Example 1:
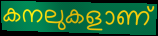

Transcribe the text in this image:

കനലുകളാണ്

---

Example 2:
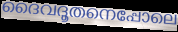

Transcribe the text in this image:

ദൈവദൂതനെപ്പോലെ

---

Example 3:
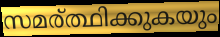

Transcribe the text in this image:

സമര്ത്ഥിക്കുകയും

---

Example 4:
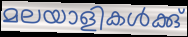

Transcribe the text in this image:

മലയാളികൾക്കു്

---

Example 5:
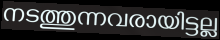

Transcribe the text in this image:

നടത്തുന്നവരായിട്ടല്ല